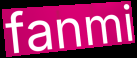
fanmi